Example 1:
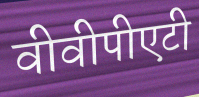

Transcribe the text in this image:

वीवीपीएटी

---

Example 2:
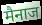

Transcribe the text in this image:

मैनाज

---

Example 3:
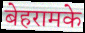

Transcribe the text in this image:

बेहरामके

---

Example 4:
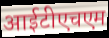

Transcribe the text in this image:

आईटीएचएम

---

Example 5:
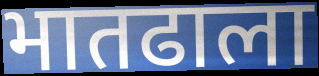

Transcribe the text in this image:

भातढाला